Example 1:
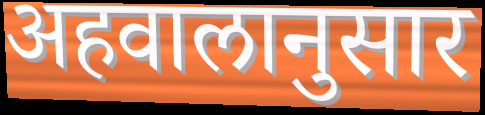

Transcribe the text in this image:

अहवालानुसार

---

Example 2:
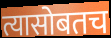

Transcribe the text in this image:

त्यासोबतच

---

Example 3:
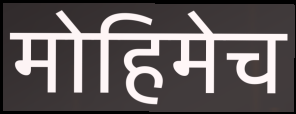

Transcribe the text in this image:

मोहिमेच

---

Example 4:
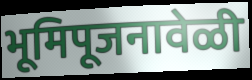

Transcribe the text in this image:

भूमिपूजनावेळी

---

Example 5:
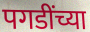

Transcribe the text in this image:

पगडींच्या